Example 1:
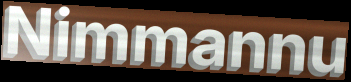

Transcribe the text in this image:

Nimmannu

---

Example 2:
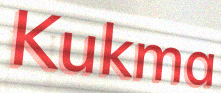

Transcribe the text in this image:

Kukma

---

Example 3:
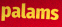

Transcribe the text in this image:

palams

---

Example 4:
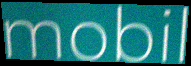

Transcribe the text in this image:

mobil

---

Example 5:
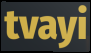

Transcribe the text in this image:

tvayi